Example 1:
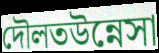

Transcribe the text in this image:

দৌলতউন্নেসা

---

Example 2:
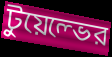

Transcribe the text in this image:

টুয়েল্ভের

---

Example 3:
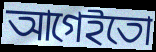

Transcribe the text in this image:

আগেইতো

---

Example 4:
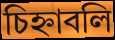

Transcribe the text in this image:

চিহ্নাবলি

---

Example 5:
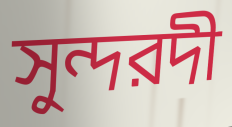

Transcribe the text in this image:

সুন্দরদী